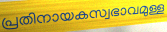
പ്രതിനായകസ്വഭാവമുള്ള